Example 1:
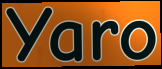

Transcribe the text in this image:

Yaro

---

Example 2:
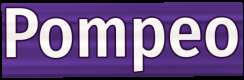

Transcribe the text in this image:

Pompeo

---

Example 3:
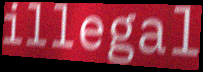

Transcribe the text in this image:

illegal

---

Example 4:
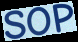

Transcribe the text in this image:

SOP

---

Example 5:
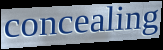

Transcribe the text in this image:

concealing